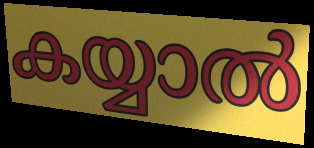
കയ്യാൽ